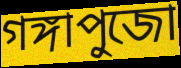
গঙ্গাপুজো